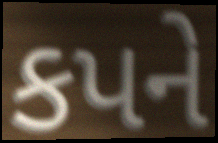
કપને